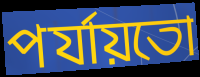
পৰ্যায়তো